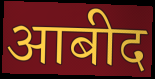
आबीद